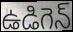
ఉడిగెన్